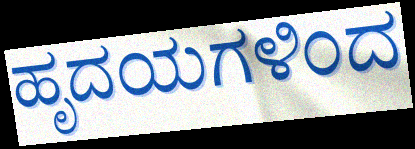
ಹೃದಯಗಳಿಂದ